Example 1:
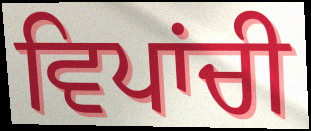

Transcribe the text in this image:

ਵਿਪਾਂਚੀ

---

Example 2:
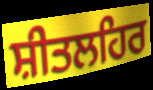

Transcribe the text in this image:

ਸ਼ੀਤਲਹਿਰ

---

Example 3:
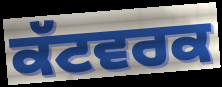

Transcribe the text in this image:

ਕੱਟਵਰਕ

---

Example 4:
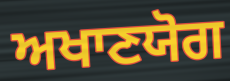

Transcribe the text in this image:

ਅਖਾਣਯੋਗ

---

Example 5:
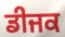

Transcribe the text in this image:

ਡੀਜਕ